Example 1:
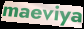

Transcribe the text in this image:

maeviya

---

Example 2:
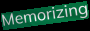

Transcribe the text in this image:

Memorizing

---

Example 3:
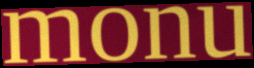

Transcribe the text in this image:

monu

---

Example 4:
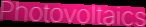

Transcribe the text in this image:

Photovoltaics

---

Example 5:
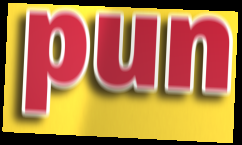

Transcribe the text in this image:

pun